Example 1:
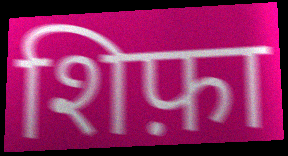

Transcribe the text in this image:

शिफ़ा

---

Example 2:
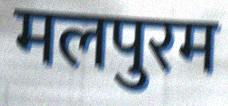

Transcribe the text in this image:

मलपुरम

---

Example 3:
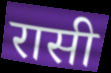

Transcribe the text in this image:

रासी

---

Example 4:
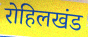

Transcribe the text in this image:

रोहिलखंड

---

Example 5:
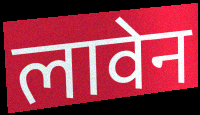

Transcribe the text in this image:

लावेन